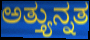
ಅತ್ತ್ಯುನ್ನತ